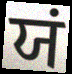
ਯਂ